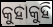
କୁହାକୁହି